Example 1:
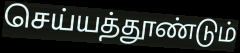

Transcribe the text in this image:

செய்யத்தூண்டும்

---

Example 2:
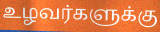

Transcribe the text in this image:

உழவர்களுக்கு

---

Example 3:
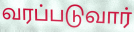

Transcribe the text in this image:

வரப்படுவார்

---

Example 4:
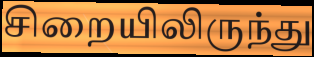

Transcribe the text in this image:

சிறையிலிருந்து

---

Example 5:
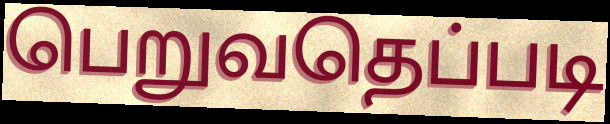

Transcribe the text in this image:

பெறுவதெப்படி